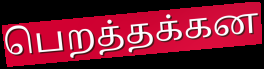
பெறத்தக்கன